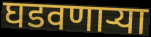
घडवणार्‍या